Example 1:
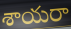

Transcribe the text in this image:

శాయరా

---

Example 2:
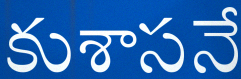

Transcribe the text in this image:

కుశాసనే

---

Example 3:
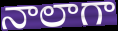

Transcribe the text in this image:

నాలాగా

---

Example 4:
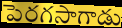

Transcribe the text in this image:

పెరగసాగాడు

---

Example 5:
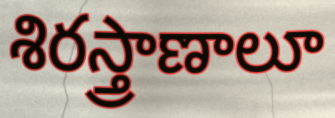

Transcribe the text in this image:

శిరస్త్రాణాలూ